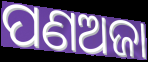
ପଣଅଜା